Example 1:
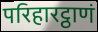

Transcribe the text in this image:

परिहारट्ठाणं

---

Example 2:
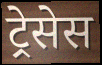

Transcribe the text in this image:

ट्रेसेस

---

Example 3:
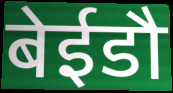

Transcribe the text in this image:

बेईडौ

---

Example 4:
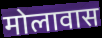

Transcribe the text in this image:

मोलावास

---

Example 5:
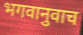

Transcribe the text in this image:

भगवानुवाच